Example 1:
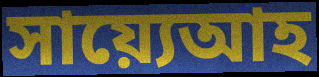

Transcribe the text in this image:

সায়্যেআহ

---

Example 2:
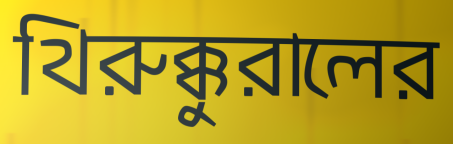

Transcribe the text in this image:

থিরুক্কুরালের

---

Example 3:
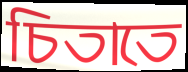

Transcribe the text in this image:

চিতাতে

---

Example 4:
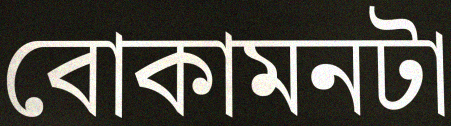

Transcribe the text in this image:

বোকামনটা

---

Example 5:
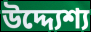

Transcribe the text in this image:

উদ্দ্যেশ্য